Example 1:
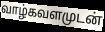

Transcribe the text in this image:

வாழ்கவளமுடன்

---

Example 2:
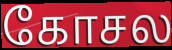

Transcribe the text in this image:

கோசல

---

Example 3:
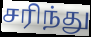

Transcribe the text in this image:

சரிந்து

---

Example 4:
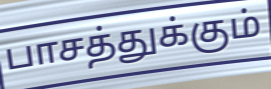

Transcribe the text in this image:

பாசத்துக்கும்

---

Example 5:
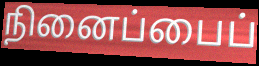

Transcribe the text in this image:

நினைப்பைப்